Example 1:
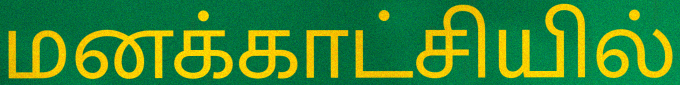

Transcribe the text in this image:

மனக்காட்சியில்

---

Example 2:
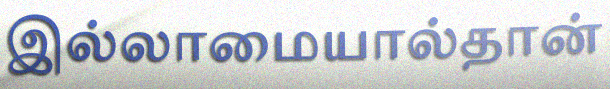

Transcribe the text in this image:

இல்லாமையால்தான்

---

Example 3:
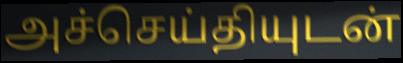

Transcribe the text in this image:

அச்செய்தியுடன்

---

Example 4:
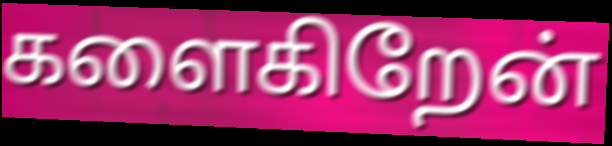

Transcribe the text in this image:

களைகிறேன்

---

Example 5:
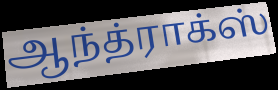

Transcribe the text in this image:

ஆந்த்ராக்ஸ்